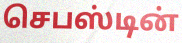
செபஸ்டின்